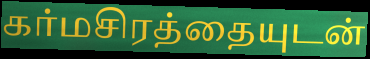
கர்மசிரத்தையுடன்